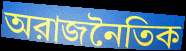
অরাজনৈতিক